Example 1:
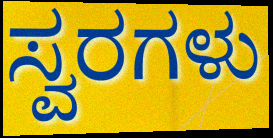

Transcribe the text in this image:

ಸ್ವರಗಳು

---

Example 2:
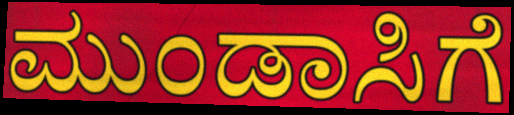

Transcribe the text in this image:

ಮುಂಡಾಸಿಗೆ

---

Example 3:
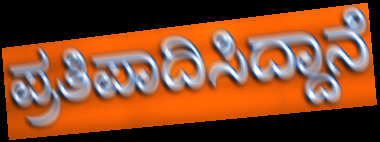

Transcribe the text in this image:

ಪ್ರತಿಪಾದಿಸಿದ್ದಾನೆ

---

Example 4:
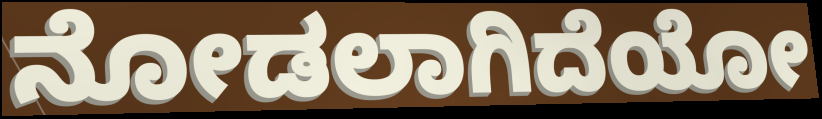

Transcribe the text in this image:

ನೋಡಲಾಗಿದೆಯೋ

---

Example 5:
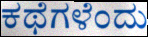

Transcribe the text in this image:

ಕಥೆಗಳೆಂದು